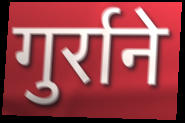
गुर्राने